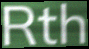
Rth